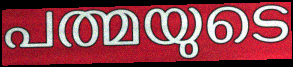
പത്മയുടെ